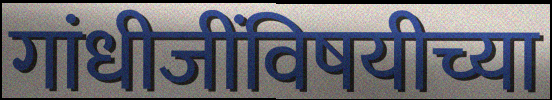
गांधीजींविषयीच्या